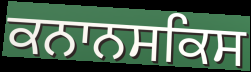
ਕਨਾਨਸਕਿਸ